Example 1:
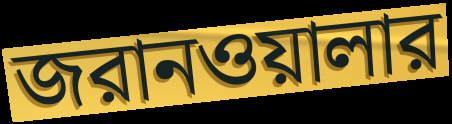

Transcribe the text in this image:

জরানওয়ালার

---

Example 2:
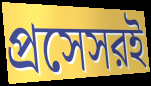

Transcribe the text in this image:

প্রসেসরই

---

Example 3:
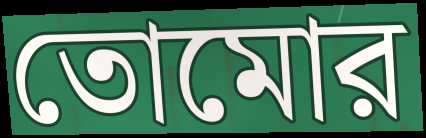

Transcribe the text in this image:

তোমোর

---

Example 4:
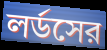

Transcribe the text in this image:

লর্ডসের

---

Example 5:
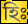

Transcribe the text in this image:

হিঃ